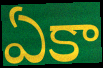
ఏకా